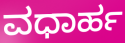
ವಧಾರ್ಹ